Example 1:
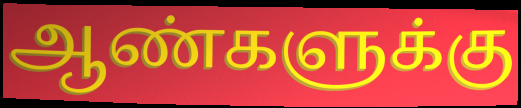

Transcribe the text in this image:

ஆண்களுக்கு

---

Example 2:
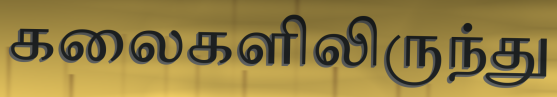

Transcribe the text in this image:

கலைகளிலிருந்து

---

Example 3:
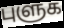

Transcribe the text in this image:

புளுக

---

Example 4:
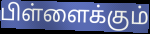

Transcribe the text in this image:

பிள்ளைக்கும்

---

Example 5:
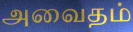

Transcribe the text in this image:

அவைதம்